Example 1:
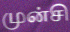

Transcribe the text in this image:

முன்சி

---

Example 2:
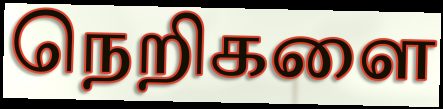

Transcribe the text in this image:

நெறிகளை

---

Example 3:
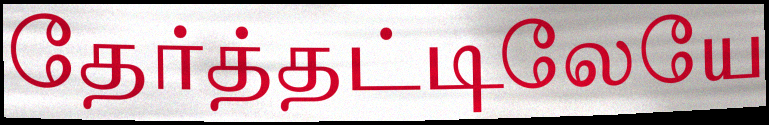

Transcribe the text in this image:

தேர்த்தட்டிலேயே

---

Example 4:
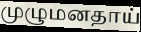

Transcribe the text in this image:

முழுமனதாய்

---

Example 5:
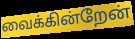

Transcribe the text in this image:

வைக்கின்றேன்